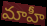
మాహీ